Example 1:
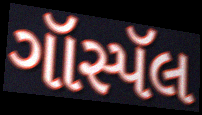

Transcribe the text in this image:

ગૉસ્પૅલ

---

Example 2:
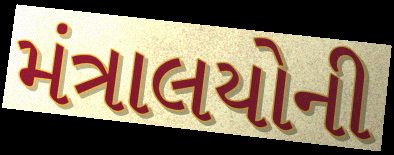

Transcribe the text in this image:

મંત્રાલયોની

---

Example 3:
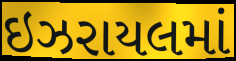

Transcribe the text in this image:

ઇઝરાયલમાં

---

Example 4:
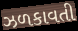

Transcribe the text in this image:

ઝળકાવતી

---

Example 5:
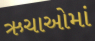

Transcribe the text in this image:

ઋચાઓમાં